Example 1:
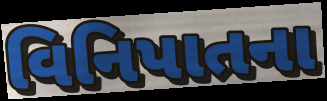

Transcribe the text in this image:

વિનિપાતના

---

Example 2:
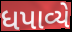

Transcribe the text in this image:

ધપાવ્યે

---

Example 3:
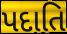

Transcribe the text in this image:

પદાતિ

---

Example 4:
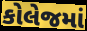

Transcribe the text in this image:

કોલેજમાં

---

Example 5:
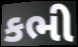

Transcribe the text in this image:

કભી